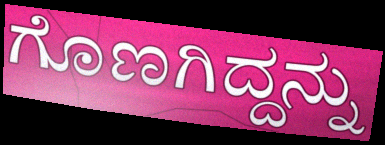
ಗೊಣಗಿದ್ದನ್ನು